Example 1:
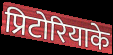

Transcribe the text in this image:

प्रिटोरियाके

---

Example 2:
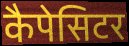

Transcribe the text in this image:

कैपेसिटर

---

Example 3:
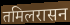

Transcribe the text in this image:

तमिलरासन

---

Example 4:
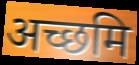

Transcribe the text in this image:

अच्छमि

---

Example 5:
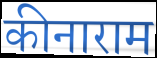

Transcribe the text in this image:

कीनाराम